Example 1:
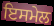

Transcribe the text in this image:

ਇਸਮੇਲ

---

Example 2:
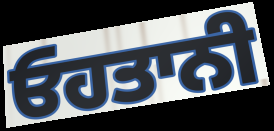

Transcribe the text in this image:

ਓਹਤਾਨੀ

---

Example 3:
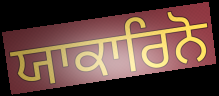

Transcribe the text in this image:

ਯਾਕਾਰਿਨੋ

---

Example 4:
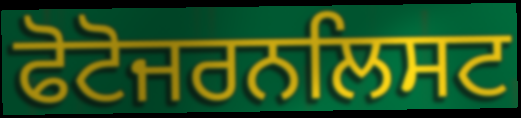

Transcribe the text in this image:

ਫੋਟੋਜਰਨਲਿਸਟ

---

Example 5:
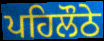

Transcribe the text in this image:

ਪਹਿਲੌਠੇ